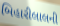
બિહારીલાલની